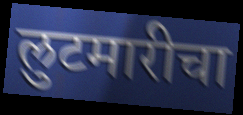
लुटमारीचा